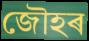
জৌহৰ